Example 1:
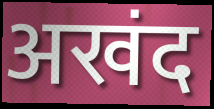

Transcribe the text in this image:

अखंद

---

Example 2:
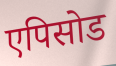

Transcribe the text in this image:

एपिसोड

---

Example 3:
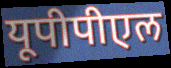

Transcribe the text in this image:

यूपीपीएल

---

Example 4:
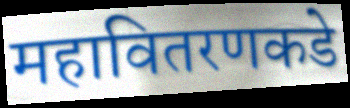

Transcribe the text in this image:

महावितरणकडे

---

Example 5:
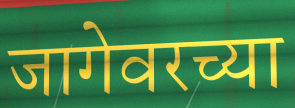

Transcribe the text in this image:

जागेवरच्या